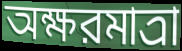
অক্ষরমাত্রা